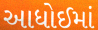
આધોઈમાં